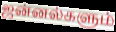
ஜன்னல்களும்